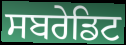
ਸਬਰੇਡਿਟ